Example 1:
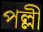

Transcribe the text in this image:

পল্লী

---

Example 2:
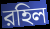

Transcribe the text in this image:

রহিল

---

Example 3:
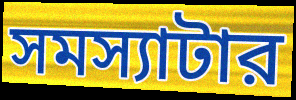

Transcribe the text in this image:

সমস্যাটার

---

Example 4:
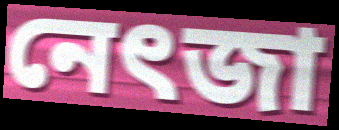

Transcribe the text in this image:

নেৎজা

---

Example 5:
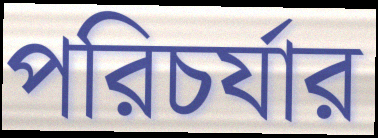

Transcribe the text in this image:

পরিচর্যার